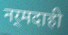
नर्मदाही